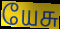
யேசு